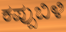
ಕಪ್ಪುಬಿಳಿ